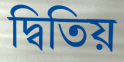
দ্বিতিয়